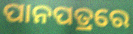
ପାନପତ୍ରରେ